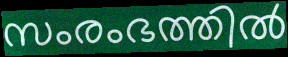
സംരംഭത്തിൽ